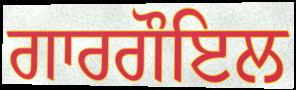
ਗਾਰਗੌਇਲ